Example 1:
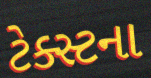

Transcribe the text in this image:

ટેક્સ્ટના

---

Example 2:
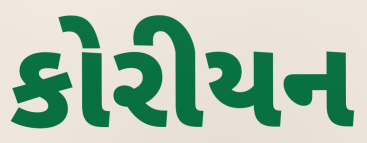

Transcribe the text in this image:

કોરીયન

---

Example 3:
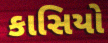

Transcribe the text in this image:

કાસિયો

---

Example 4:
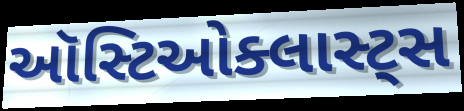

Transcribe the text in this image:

ઑસ્ટિઓક્લાસ્ટ્સ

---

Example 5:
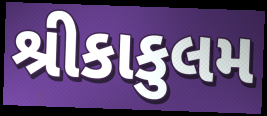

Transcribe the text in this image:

શ્રીકાકુલમ